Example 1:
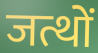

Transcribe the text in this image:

जत्थों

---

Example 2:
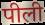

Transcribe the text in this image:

पीली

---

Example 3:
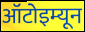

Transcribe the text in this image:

ऑटोइम्यून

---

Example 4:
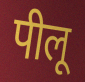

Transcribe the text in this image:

पीलू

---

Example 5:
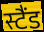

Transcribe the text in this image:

स्टैंड